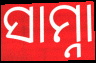
ସାମ୍ନା